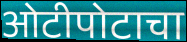
ओटीपोटाचा